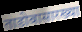
ताडोबासारख्या